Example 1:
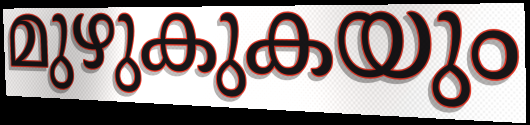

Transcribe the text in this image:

മുഴുകുകയും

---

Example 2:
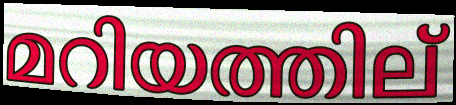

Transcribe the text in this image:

മറിയത്തില്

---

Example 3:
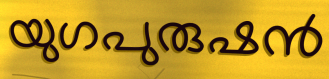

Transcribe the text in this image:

യുഗപുരുഷൻ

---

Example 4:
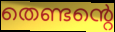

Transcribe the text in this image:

തെണ്ടന്റെ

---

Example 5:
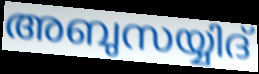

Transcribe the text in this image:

അബുസയ്യിദ്